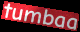
tumbaa